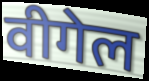
वीगेल